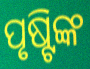
ପୃଷ୍ଟିଙ୍କ